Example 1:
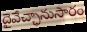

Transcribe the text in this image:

దైవేచ్ఛానుసారం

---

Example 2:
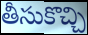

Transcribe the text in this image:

తీసుకొచ్చి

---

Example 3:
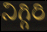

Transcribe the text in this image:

నిగ్గిరి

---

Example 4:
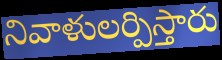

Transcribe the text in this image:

నివాళులర్పిస్తారు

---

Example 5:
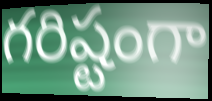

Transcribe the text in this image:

గరిష్టంగా